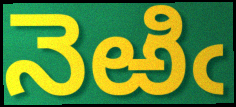
నెఱిఁ